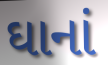
ઘાનાં